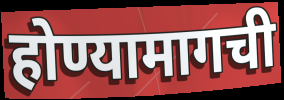
होण्यामागची